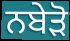
ਨਬੇੜੋ